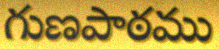
గుణపాఠము